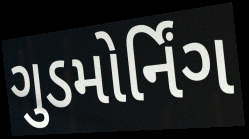
ગુડમોર્નિંગ